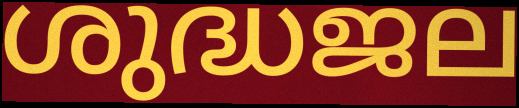
ശുദ്ധജല